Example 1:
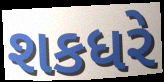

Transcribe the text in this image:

શકધરે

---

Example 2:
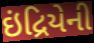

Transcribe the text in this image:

ઇંદ્રિયેની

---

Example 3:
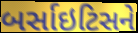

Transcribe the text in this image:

બર્સાઇટિસને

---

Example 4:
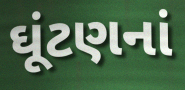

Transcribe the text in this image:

ઘૂંટણનાં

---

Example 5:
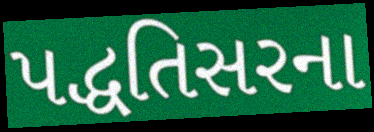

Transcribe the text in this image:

પદ્ધતિસરના